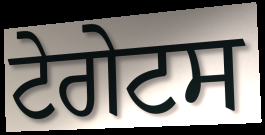
ਟੇਗੇਟਸ